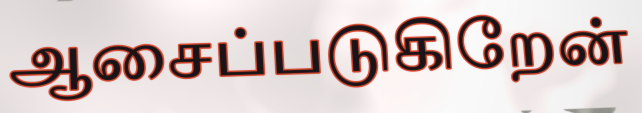
ஆசைப்படுகிறேன்